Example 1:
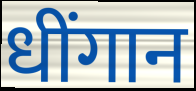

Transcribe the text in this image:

धींगान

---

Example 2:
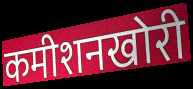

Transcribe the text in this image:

कमीशनखोरी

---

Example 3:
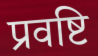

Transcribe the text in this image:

प्रवष्टि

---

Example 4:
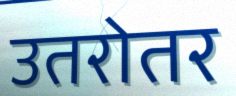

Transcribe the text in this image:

उतरोतर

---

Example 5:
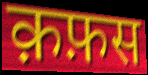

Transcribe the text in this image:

क़फ़स